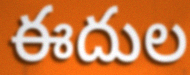
ఈదుల